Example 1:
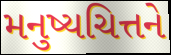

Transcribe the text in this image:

મનુષ્યચિત્તને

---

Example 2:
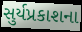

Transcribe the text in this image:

સુર્યપ્રકાશના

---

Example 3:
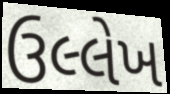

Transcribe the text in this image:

ઉલ્લેખ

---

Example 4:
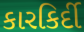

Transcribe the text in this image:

કારકિર્દી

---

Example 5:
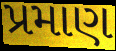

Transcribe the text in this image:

પ્રમાણ